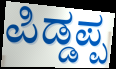
ಪಿಡ್ಡಪ್ಪ